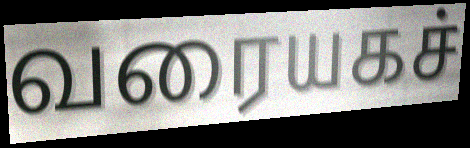
வரையகச்